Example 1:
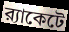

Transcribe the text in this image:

র‍্যাকেটে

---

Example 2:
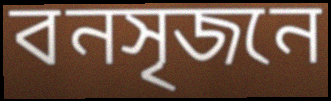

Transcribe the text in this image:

বনসৃজনে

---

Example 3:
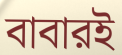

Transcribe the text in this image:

বাবারই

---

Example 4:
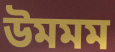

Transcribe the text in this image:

উমমম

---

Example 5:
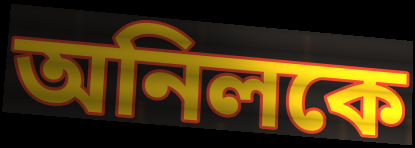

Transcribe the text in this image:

অনিলকে